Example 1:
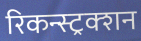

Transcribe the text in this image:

रिकन्स्ट्रक्शन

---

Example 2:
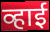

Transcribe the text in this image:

व्हाई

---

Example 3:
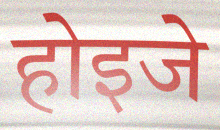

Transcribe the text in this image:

होइजे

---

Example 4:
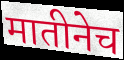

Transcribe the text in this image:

मातीनेच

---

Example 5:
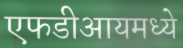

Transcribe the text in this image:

एफडीआयमध्ये